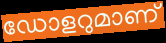
ഡോളറുമാണ്